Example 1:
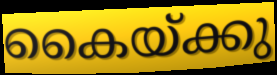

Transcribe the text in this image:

കൈയ്ക്കു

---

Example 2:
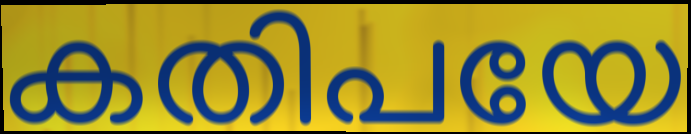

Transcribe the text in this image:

കതിപയേ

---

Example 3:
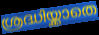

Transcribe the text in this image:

ശ്രദ്ധിയ്ക്കാതെ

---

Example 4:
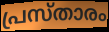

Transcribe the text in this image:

പ്രസ്താരം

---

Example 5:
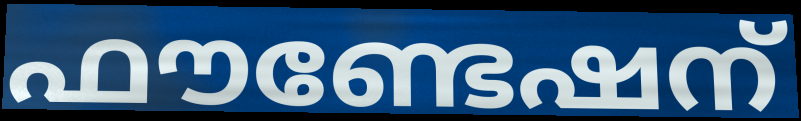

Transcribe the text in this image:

ഫൗണ്ടേഷന്